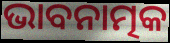
ଭାବନାତ୍ମକ